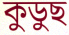
কুডুছ